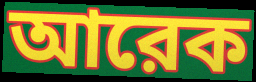
আরেক